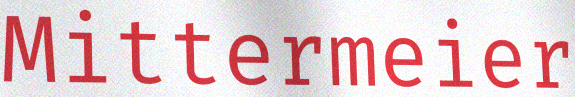
Mittermeier